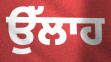
ਉੱਲਾਹ